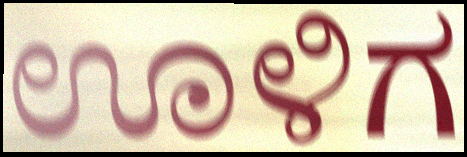
ಊಳಿಗ